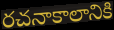
రచనాకాలానికి